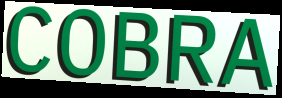
COBRA